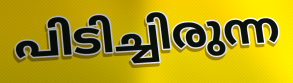
പിടിച്ചിരുന്ന